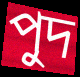
পুদ